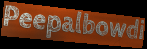
Peepalbowdi